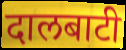
दालबाटी